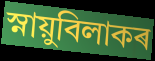
স্নায়ুবিলাকৰ